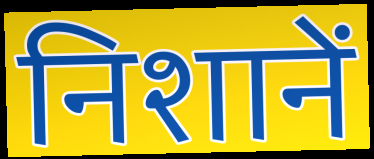
निशानें